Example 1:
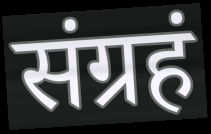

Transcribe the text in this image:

संग्रहं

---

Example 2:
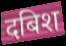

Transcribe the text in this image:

दबिश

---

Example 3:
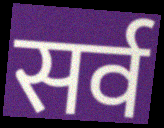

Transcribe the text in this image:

सर्व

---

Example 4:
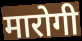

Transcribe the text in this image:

मारोगी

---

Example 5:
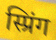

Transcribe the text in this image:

स्प्रिंग